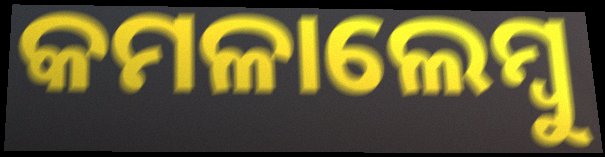
କମଳାଲେମ୍ୱୁ